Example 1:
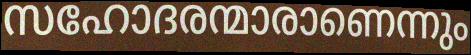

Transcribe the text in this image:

സഹോദരന്മാരാണെന്നും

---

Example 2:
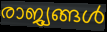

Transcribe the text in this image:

രാജ്യങ്ങൾ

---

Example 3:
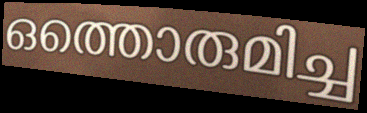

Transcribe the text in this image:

ഒത്തൊരുമിച്ച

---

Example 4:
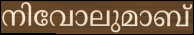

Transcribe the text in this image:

നിവോലുമാബ്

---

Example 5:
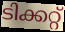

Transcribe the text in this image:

ടിക്കറ്റ്